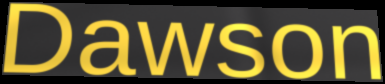
Dawson